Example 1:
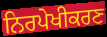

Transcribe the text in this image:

ਨਿਰਪੇਖੀਕਰਣ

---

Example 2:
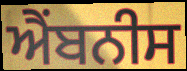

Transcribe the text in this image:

ਐਂਬਨੀਸ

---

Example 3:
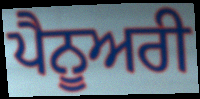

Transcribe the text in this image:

ਪੈਨੂਅਰੀ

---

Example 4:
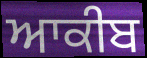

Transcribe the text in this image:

ਆਕੀਬ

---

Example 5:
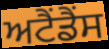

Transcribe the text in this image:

ਅਟੈਂਡੈਂਸ